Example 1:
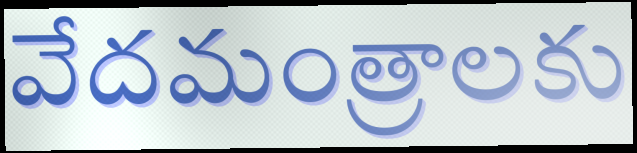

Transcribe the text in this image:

వేదమంత్రాలకు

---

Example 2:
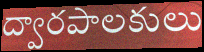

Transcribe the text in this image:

ద్వారపాలకులు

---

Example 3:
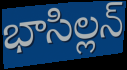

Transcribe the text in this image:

భాసిల్లన్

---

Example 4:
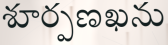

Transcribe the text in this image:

శూర్పణఖను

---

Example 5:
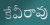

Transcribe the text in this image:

కేవీరావు